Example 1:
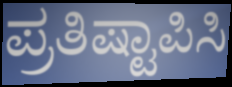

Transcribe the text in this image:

ಪ್ರತಿಷ್ಟಾಪಿಸಿ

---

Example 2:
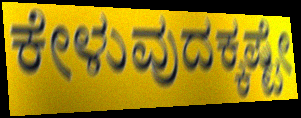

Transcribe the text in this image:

ಕೇಳುವುದಕ್ಕಷ್ಟೇ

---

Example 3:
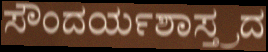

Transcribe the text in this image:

ಸೌಂದರ್ಯಶಾಸ್ತ್ರದ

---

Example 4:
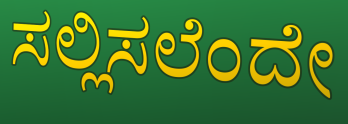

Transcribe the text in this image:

ಸಲ್ಲಿಸಲೆಂದೇ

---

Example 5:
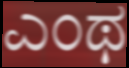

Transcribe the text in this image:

ಎಂಥ